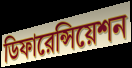
ডিফারেন্সিয়েশন